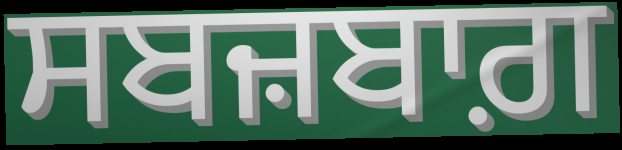
ਸਬਜ਼ਬਾਗ਼